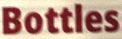
Bottles